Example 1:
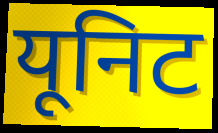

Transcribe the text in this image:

यूनिट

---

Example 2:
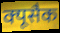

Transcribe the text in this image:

क्यूसैक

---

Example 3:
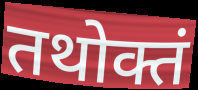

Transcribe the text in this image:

तथोक्तं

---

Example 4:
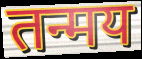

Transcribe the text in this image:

तन्‍मय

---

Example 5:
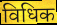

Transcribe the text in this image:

विधिक